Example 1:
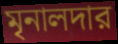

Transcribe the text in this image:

মৃনালদার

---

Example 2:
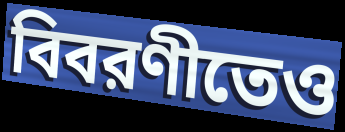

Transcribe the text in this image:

বিবরণীতেও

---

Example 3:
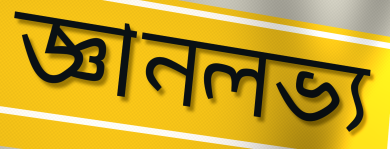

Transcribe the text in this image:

জ্ঞানলভ্য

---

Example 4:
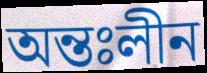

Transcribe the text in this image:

অন্তঃলীন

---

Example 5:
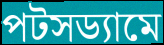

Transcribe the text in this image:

পটসড্যামে